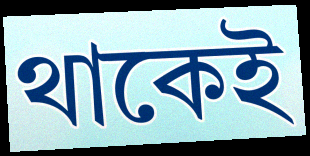
থাকেই